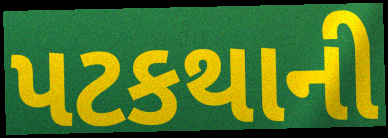
પટકથાની